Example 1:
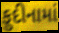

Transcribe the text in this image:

ફુદીનામાં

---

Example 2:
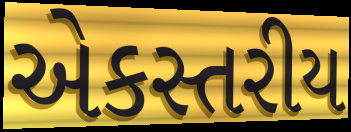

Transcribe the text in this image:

એકસ્તરીય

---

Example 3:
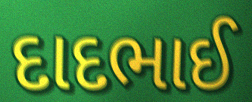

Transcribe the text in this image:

દાદભાઈ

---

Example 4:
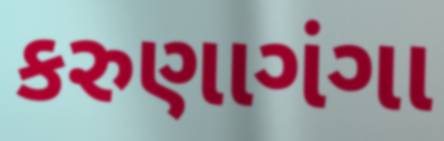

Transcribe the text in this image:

કરુણાગંગા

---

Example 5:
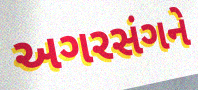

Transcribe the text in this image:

અગરસંગને